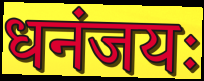
धनंजयः